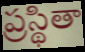
ప్రస్థితా